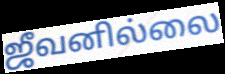
ஜீவனில்லை